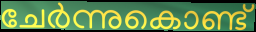
ചേർന്നുകൊണ്ട്